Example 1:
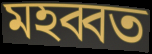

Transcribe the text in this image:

মহব্বত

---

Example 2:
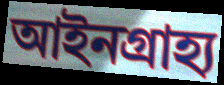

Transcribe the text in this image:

আইনগ্রাহ্য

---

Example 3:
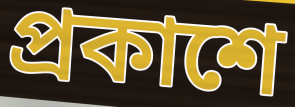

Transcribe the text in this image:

প্রকাশে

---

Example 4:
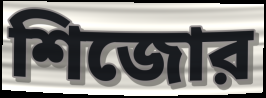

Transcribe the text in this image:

শিজোর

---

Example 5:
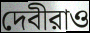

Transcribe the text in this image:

দেবীরাও